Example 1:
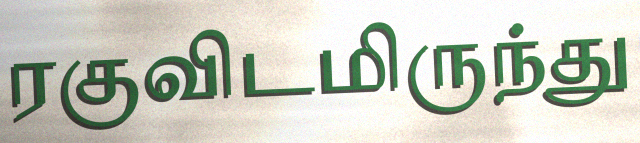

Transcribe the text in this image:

ரகுவிடமிருந்து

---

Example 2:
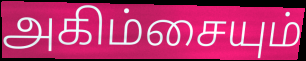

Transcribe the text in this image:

அகிம்சையும்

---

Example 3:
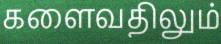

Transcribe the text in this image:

களைவதிலும்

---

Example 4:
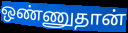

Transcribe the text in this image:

ஒண்ணுதான்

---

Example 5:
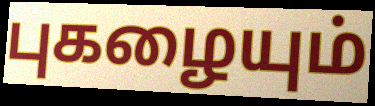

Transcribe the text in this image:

புகழையும்